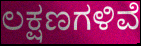
ಲಕ್ಷಣಗಳಿವೆ